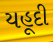
યહૂદી